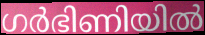
ഗർഭിണിയിൽ